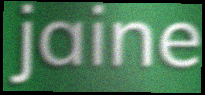
jaine